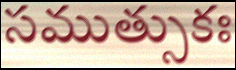
సముత్సుకః